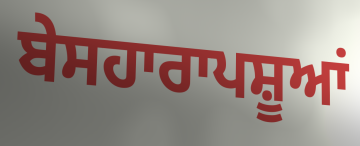
ਬੇਸਹਾਰਾਪਸ਼ੂਆਂ